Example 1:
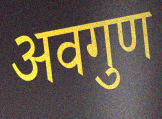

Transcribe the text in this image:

अवगुण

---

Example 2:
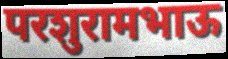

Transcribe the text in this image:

परशुरामभाऊ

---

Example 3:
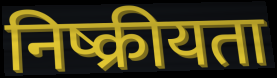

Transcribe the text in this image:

निष्क्रीयता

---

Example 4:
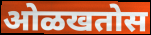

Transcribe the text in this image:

ओळखतोस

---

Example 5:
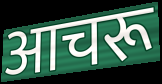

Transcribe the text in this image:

आचरू